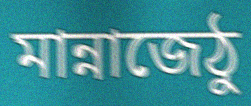
মান্নাজেঠু